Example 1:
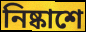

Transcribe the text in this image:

নিষ্কাশে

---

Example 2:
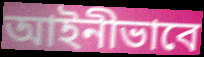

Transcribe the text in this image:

আইনীভাবে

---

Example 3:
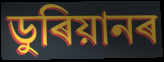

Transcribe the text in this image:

ডুৰিয়ানৰ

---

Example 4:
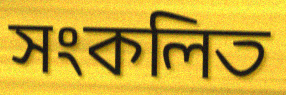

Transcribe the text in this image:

সংকলিত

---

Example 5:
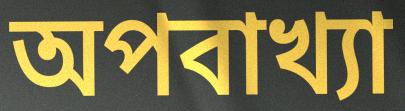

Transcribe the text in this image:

অপবাখ্যা